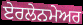
ਏਰਲੇਨਮੇਅਰ